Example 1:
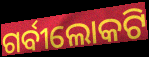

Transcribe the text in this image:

ଗର୍ବୀଲୋକଟି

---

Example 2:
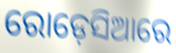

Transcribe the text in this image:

ରୋଡ଼େସିଆରେ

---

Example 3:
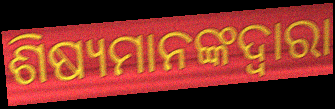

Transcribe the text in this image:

ଶିଷ୍ୟମାନଙ୍କଦ୍ୱାରା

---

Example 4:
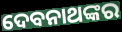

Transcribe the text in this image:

ଦେବନାଥଙ୍କର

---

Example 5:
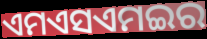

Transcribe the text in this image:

ଏମଏସଏମଇର